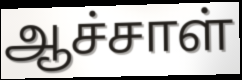
ஆச்சாள்